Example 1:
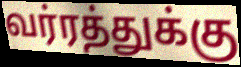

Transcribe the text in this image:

வர்ரத்துக்கு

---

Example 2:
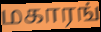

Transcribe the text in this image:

மகாரங்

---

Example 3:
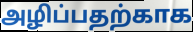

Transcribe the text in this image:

அழிப்பதற்காக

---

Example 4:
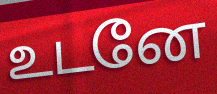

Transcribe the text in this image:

உடனே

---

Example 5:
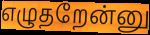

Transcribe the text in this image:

எழுதறேன்னு